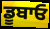
ਡੂਬਾਓ